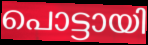
പൊട്ടായി